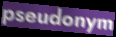
pseudonym